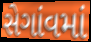
સેગાંવમાં